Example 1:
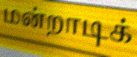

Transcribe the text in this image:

மன்றாடிக்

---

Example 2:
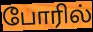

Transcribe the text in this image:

போரில்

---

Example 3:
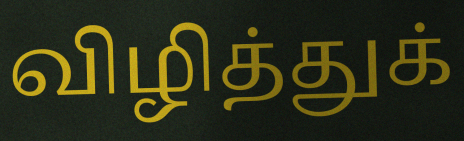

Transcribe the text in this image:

விழித்துக்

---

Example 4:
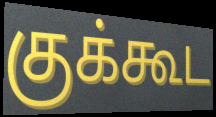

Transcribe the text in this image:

குக்கூட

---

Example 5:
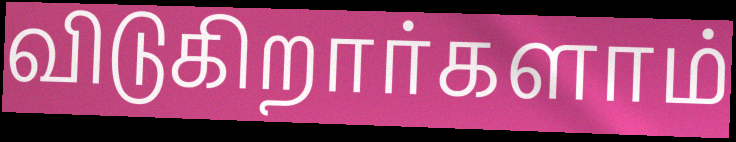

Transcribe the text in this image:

விடுகிறார்களாம்